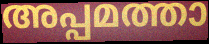
അപ്പമത്താ